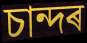
চান্দৰ